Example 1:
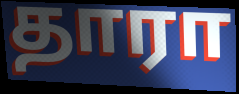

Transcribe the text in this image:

தாரா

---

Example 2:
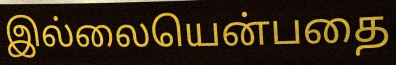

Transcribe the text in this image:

இல்லையென்பதை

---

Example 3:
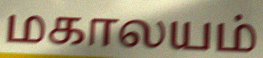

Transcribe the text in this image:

மகாலயம்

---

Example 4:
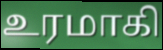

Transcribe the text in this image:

உரமாகி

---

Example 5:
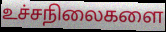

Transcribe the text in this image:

உச்சநிலைகளை